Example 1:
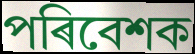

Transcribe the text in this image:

পৰিবেশক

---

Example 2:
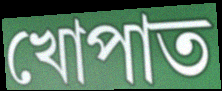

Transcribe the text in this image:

খোপাত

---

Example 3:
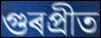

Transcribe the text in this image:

গুৰপ্ৰীত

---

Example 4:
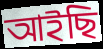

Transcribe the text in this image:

আইছি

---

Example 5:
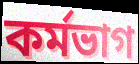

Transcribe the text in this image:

কৰ্মভাগ